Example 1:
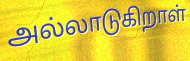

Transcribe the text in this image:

அல்லாடுகிறாள்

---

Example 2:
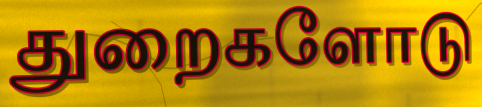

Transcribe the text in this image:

துறைகளோடு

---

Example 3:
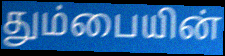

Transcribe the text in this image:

தும்பையின்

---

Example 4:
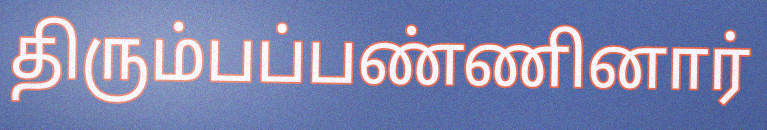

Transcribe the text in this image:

திரும்பப்பண்ணினார்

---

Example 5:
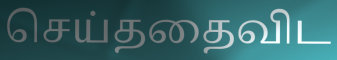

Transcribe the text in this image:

செய்ததைவிட